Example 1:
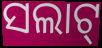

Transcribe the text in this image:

ସଲାଟ୍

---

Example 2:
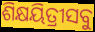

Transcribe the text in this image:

ଶିକ୍ଷୟିତ୍ରୀସବୁ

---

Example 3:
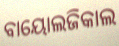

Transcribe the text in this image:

ବାୟୋଲଜିକାଲ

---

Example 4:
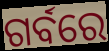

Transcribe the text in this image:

ଗର୍ବରେ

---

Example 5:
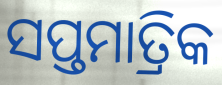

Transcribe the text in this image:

ସପ୍ତମାତ୍ରିକ